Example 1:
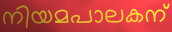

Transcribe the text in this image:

നിയമപാലകന്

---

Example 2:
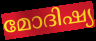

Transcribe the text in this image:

മോദിഷ്യ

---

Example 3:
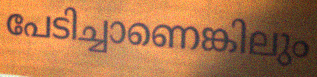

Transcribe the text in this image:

പേടിച്ചാണെങ്കിലും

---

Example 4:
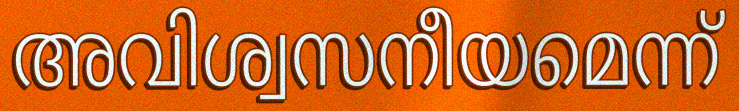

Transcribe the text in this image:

അവിശ്വസനീയമെന്ന്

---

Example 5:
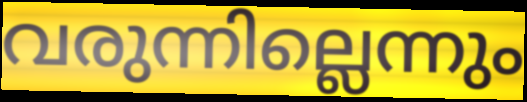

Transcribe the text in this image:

വരുന്നില്ലെന്നും